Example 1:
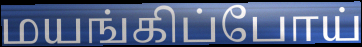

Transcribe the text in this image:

மயங்கிப்போய்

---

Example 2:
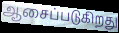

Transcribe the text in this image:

ஆசைப்படுகிறது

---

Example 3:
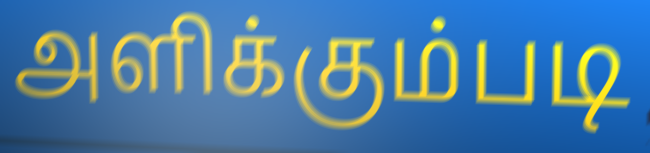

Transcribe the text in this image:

அளிக்கும்படி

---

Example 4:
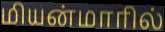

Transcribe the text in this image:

மியன்மாரில்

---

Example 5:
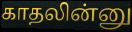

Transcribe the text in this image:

காதலின்னு